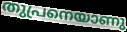
തുപ്രനെയാണു